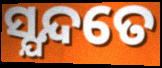
ସ୍ଯନ୍ଦତେ